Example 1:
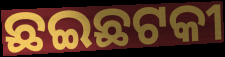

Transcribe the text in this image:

ଛଇଛଟକୀ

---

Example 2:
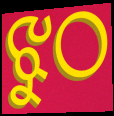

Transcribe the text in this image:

ଝୁଠ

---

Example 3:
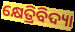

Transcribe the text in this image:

କ୍ଷେତ୍ରିବିଦ୍ୟା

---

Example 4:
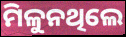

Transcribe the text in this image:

ମିଳୁନଥିଲେ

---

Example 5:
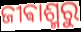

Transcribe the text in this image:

ଜୀଵାଶ୍ମରୁ